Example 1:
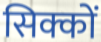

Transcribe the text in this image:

सिक्कों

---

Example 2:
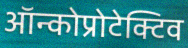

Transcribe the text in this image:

ऑन्कोप्रोटेक्टिव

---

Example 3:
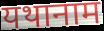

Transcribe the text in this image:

यथानाम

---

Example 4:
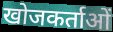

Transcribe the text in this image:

खोजकर्ताओं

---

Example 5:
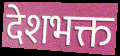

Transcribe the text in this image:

देशभक्त